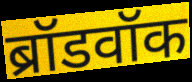
ब्रॉडवॉक